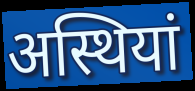
अस्थियां